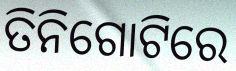
ତିନିଗୋଟିରେ